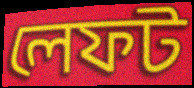
লেফট